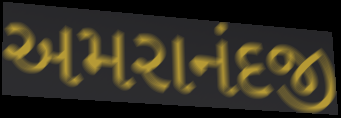
અમરાનંદજી